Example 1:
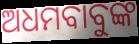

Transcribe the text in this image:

ଅଧମବାବୁଙ୍କ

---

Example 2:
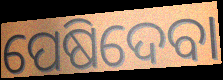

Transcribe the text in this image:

ପେଷିଦେବା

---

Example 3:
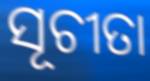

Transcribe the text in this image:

ସୂଚୀତା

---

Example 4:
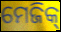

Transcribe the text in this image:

ମେଜିକ୍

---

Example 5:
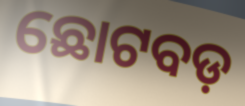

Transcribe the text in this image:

ଛୋଟବଡ଼